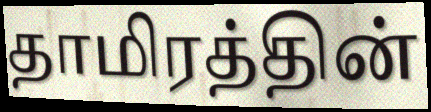
தாமிரத்தின்